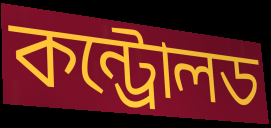
কন্ট্রোলড